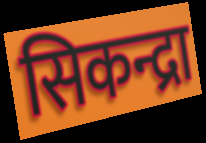
सिकन्द्रा